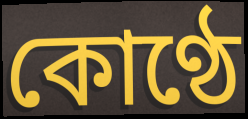
কোণ্ঠে